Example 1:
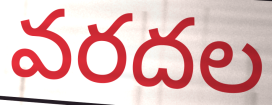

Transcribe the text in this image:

వరదల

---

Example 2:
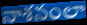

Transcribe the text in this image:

నాశనంలా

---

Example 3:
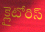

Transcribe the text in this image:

క్లైటోరిస్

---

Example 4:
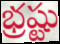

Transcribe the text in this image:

భ్రష్టు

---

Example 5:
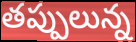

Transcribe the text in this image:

తప్పులున్న